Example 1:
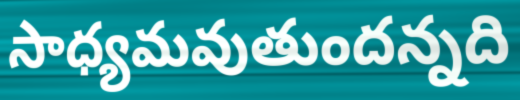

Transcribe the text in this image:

సాధ్యమవుతుందన్నది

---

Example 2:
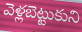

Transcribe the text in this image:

వెళ్లబెట్టుకుని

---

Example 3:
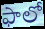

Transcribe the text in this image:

ఫాలో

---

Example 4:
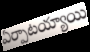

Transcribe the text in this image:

ఏర్పాటయ్యాయి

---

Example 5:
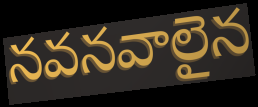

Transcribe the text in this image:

నవనవాలైన